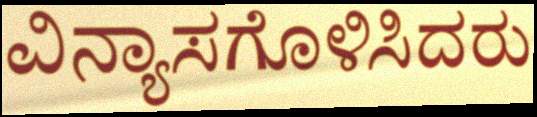
ವಿನ್ಯಾಸಗೊಳಿಸಿದರು